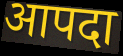
आपदा